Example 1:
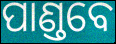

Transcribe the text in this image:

ପାଣ୍ଡବେ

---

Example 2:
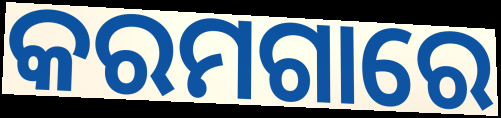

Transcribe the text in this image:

କରମଗାରେ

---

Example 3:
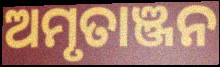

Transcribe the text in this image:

ଅମୃତାଞ୍ଜନ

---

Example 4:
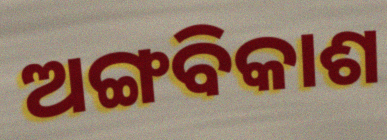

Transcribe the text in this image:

ଅଙ୍ଗବିକାଶ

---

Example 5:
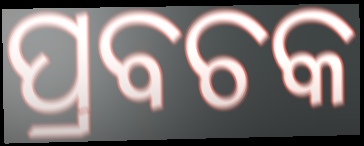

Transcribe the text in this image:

ପ୍ରବଚକ